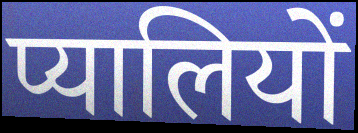
प्यालियों